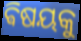
ଵିଷୟକୁ